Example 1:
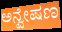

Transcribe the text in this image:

ಅನ್ವೇಷಣ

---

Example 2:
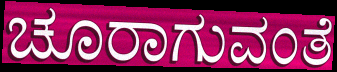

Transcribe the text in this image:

ಚೂರಾಗುವಂತೆ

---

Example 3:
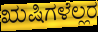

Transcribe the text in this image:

ಋಷಿಗಳೆಲ್ಲರ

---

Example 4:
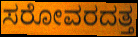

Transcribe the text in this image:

ಸರೋವರದತ್ತ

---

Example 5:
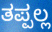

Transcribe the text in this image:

ತಪ್ಪಲ್ಲ